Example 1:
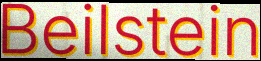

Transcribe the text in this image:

Beilstein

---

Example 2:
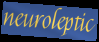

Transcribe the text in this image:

neuroleptic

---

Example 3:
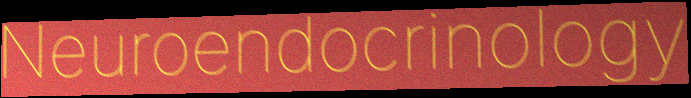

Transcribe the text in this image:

Neuroendocrinology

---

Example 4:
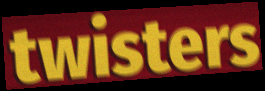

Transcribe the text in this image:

twisters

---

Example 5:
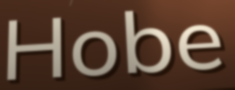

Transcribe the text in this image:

Hobe